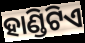
ହାଣ୍ଡିଟିଏ